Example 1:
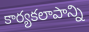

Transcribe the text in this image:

కార్యకలాపాన్ని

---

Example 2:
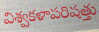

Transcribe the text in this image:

విశ్వకళాపరిషత్తు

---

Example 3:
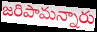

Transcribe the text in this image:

జరిపామన్నారు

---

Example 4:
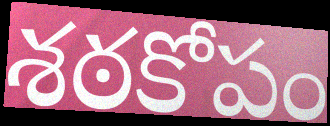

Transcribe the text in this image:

శఠకోపం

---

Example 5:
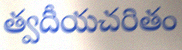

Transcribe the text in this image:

త్వదీయచరితం